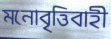
মনোবৃত্তিবাহী